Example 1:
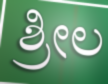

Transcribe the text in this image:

ಶ್ರೀಲ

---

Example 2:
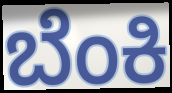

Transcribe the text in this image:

ಬೆಂಕಿ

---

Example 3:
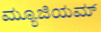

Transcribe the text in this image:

ಮ್ಯೂಜಿಯಮ್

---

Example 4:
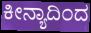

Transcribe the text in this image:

ಕೀನ್ಯಾದಿಂದ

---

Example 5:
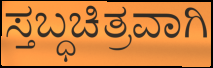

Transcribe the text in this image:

ಸ್ತಬ್ಧಚಿತ್ರವಾಗಿ